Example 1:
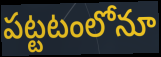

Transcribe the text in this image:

పట్టటంలోనూ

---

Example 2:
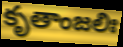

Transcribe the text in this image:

కృతాంజలిః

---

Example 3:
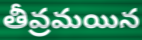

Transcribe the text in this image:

తీవ్రమయిన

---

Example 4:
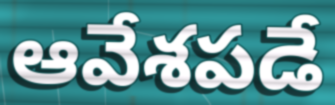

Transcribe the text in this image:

ఆవేశపడే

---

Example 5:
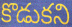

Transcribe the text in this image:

కొడుకని